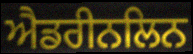
ਐਡਰੀਨਲਿਨ